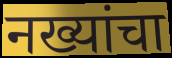
नख्यांचा